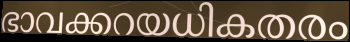
ഭാവക്കറയധികതരം